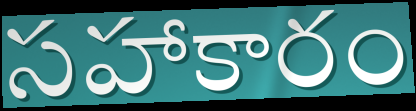
సహాకారం